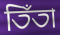
তিঁতা